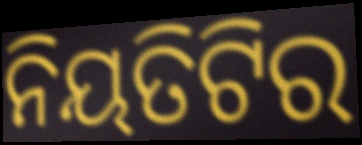
ନିୟତିଟିର